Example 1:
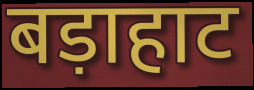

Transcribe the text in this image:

बड़ाहाट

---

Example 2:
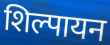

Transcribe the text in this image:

शिल्पायन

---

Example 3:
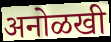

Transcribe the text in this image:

अनोळखी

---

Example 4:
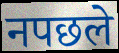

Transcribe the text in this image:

नपछले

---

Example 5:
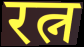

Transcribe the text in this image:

रत्न